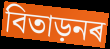
বিতাড়নৰ